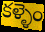
కళ్ళెం